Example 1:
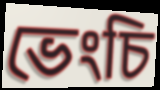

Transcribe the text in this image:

ভেংচি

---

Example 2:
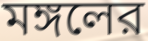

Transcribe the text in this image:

মঙ্গলের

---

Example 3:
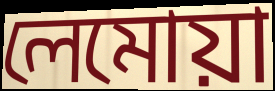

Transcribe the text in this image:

লেমোয়া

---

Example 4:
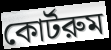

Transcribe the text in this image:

কোর্টরুম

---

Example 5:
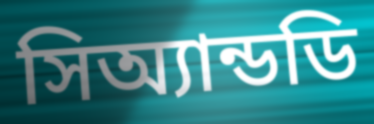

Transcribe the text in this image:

সিঅ্যান্ডডি